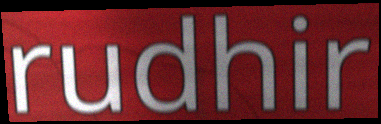
rudhir